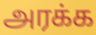
அரக்க